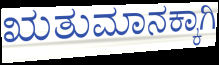
ಋತುಮಾನಕ್ಕಾಗಿ